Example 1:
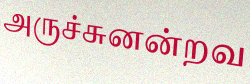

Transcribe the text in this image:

அருச்சுனன்றவ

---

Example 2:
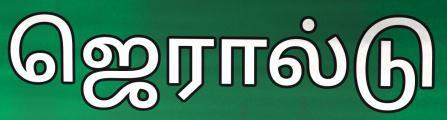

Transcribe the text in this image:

ஜெரால்டு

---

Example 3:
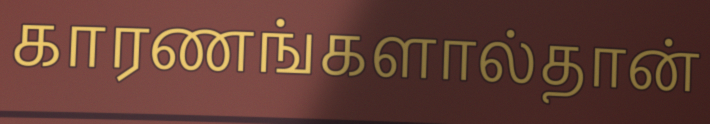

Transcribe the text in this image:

காரணங்களால்தான்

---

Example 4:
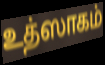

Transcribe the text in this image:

உத்ஸாகம்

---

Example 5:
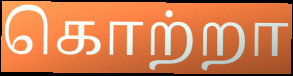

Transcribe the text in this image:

கொற்றா